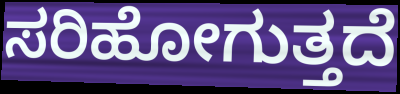
ಸರಿಹೋಗುತ್ತದೆ